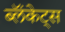
ब्लॅंकेट्स